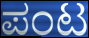
ಪಂಟ